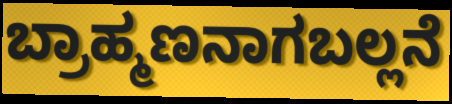
ಬ್ರಾಹ್ಮಣನಾಗಬಲ್ಲನೆ